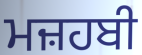
ਮਜ਼ਹਬੀ